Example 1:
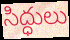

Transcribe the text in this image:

సిద్ధులు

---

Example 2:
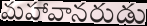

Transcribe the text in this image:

మహావానరుడు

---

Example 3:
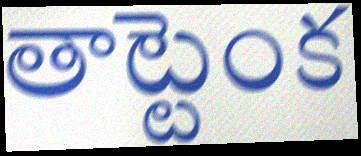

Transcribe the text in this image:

తాట్టెంక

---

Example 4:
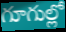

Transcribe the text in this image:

గూగుల్లో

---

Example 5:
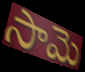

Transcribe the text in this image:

సామె